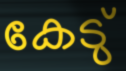
കേടു്